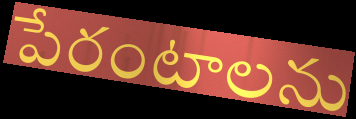
పేరంటాలను